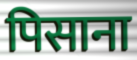
पिसाना